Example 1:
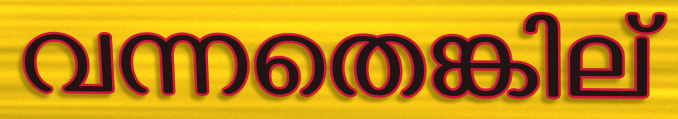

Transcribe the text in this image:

വന്നതെങ്കില്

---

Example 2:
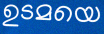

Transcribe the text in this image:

ഉടമയെ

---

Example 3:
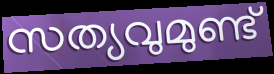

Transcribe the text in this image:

സത്യവുമുണ്ട്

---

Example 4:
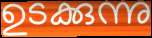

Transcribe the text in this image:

ഉടക്കുന്നു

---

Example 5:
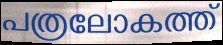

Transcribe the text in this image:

പത്രലോകത്ത്